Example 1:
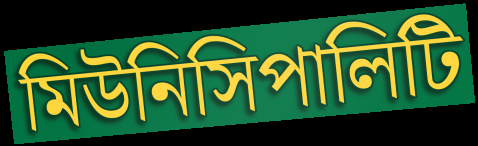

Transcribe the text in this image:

মিউনিসিপালিটি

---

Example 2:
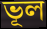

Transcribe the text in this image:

ভূল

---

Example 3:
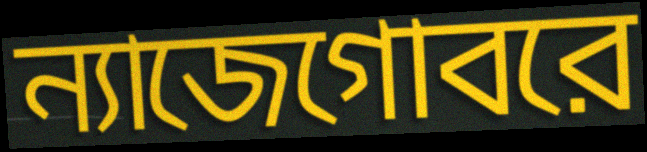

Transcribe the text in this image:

ন্যাজেগোবরে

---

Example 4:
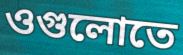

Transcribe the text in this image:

ওগুলোতে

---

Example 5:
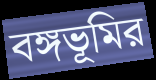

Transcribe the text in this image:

বঙ্গভূমির